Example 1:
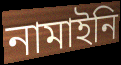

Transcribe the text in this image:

নামাইনি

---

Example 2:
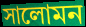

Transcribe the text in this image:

সালোমন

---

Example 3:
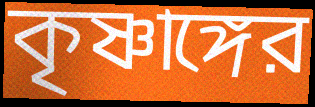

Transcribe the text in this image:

কৃষ্ণাঙ্গের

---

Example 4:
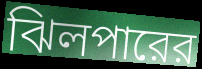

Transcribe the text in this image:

ঝিলপারের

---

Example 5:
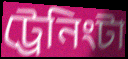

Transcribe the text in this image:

ট্রেনিংটা